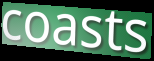
coasts